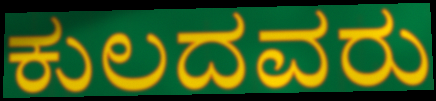
ಕುಲದವರು